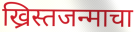
ख्रिस्तजन्माचा